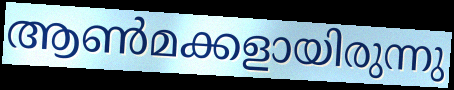
ആൺമക്കളായിരുന്നു